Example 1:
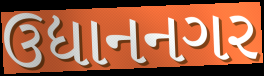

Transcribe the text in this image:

ઉદ્યાનનગર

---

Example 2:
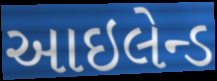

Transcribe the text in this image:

આઇલેન્ડ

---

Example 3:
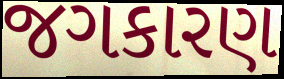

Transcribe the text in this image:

જગકારણ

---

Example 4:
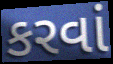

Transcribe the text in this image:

કરવાં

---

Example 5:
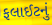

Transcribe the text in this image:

ફલાઈટનું